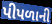
પીપળાની